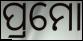
ପ୍ରମୋ